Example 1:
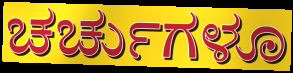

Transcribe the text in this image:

ಚರ್ಚುಗಳೂ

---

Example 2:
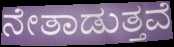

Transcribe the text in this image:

ನೇತಾಡುತ್ತವೆ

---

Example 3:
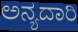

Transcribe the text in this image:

ಅನ್ಯದಾರಿ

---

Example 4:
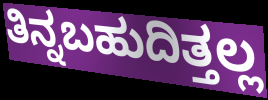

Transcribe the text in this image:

ತಿನ್ನಬಹುದಿತ್ತಲ್ಲ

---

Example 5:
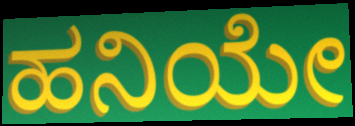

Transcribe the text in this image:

ಹನಿಯೇ